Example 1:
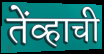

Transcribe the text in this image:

तेंव्हाची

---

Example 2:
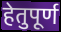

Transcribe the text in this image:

हेतुपूर्ण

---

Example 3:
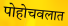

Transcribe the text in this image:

पोहोचवलात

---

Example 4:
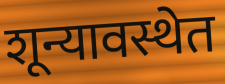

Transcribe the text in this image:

शून्यावस्थेत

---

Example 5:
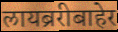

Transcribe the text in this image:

लायब्ररीबाहेर